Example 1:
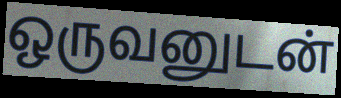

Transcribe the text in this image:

ஒருவனுடன்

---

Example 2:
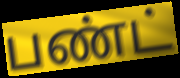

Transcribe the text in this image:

பண்ட்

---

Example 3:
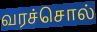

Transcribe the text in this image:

வரச்சொல்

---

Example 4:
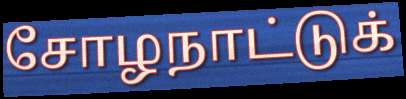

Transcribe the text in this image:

சோழநாட்டுக்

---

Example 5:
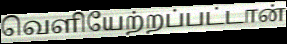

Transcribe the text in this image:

வெளியேற்றப்பட்டான்